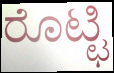
ರೊಟ್ಟಿ